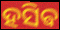
ହସିଵ